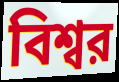
বিশ্বর